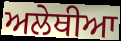
ਅਲੇਥੀਆ